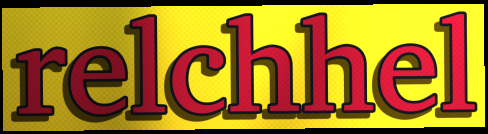
relchhel